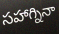
సహాగ్నినా